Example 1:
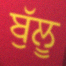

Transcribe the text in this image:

ਬੁੱਲੂ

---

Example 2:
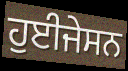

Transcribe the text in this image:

ਹੁਈਜੇਸਨ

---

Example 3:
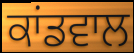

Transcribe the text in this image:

ਕਾਂਡਵਾਲ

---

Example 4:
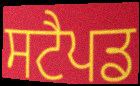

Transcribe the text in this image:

ਸਟੈਪਡ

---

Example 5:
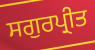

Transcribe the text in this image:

ਸਗੁਰਪ੍ਰੀਤ